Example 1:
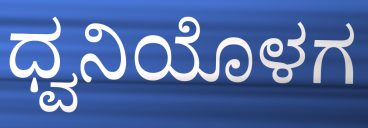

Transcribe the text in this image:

ಧ್ವನಿಯೊಳಗ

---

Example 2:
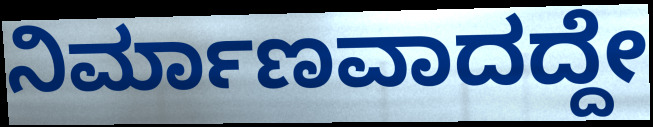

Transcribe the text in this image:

ನಿರ್ಮಾಣವಾದದ್ದೇ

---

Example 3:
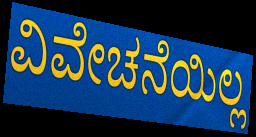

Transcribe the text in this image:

ವಿವೇಚನೆಯಿಲ್ಲ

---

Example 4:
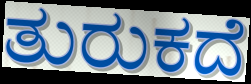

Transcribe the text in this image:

ತುರುಕದೆ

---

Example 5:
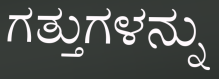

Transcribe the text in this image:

ಗತ್ತುಗಳನ್ನು